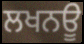
ਲਖਨਊ